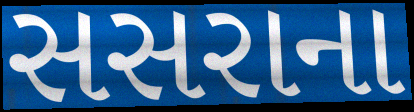
સસરાના